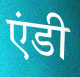
एंडी